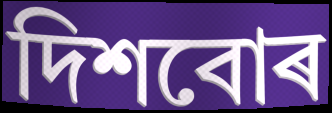
দিশবোৰ